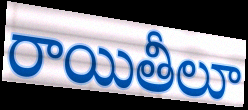
రాయితీలూ